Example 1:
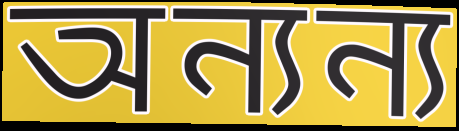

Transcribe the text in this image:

অন্যন্য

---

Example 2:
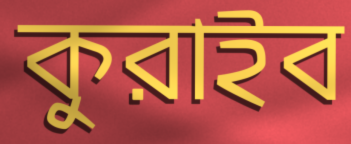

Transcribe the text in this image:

কুরাইব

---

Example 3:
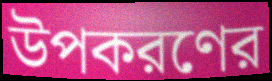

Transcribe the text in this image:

উপকরণের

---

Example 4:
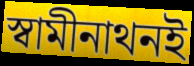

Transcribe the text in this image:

স্বামীনাথনই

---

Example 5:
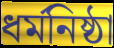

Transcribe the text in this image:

ধর্মনিষ্ঠা